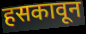
हसकावून